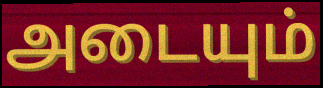
அடையும்